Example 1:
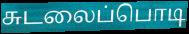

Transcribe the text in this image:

சுடலைப்பொடி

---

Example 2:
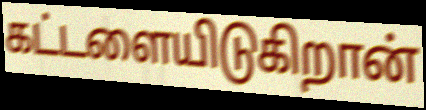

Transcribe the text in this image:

கட்டளையிடுகிறான்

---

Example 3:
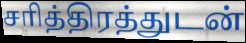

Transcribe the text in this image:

சரித்திரத்துடன்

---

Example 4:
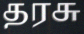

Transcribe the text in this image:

தரசு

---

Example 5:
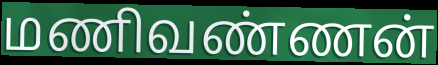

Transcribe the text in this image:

மணிவண்ணன்